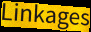
Linkages